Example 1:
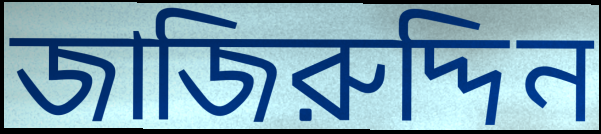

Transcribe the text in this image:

জাজিরুদ্দিন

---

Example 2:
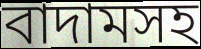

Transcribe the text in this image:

বাদামসহ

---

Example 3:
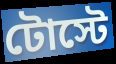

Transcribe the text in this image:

টোস্টে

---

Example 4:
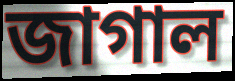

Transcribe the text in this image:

জাগাল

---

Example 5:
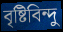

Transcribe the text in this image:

বৃষ্টিবিন্দু